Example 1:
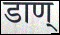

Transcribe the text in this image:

डाण्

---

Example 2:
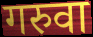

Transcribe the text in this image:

गरुवा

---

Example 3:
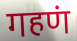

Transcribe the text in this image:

गहणं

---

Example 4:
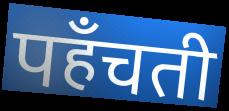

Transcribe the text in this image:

पहँचती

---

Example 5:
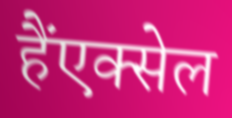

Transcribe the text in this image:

हैंएक्सेल